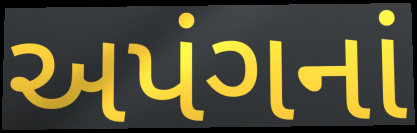
અપંગનાં